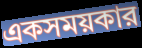
একসময়কার